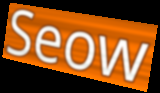
Seow